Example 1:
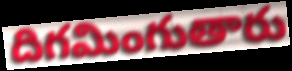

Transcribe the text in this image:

దిగమింగుతారు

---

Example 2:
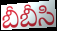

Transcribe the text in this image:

బీబీసి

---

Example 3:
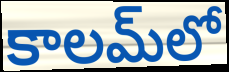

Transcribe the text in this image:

కాలమ్‍లో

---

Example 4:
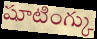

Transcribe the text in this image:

షూటింగ్కు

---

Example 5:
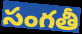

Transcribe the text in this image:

సంగతీ